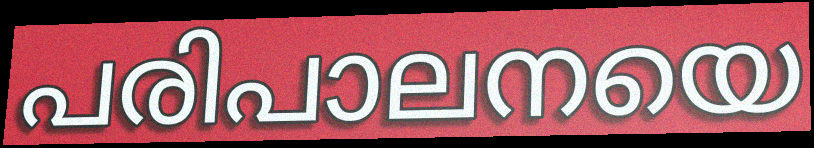
പരിപാലനയെ